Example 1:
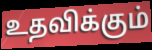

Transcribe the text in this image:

உதவிக்கும்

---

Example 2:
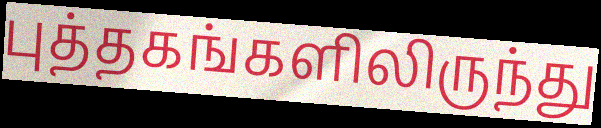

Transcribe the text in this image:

புத்தகங்களிலிருந்து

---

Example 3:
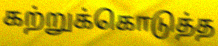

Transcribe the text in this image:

கற்றுக்கொடுத்த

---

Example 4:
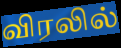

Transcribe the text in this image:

விரலில்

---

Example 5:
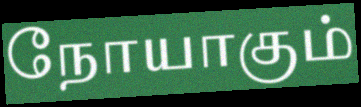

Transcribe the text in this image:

நோயாகும்